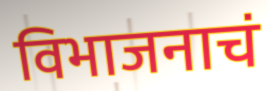
विभाजनाचं